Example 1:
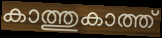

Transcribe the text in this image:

കാത്തുകാത്ത്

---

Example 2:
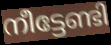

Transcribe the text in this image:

നീട്ടേണ്ടി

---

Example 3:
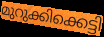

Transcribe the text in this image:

മുറുക്കിക്കെട്ടി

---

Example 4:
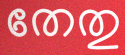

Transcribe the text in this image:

തേതു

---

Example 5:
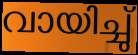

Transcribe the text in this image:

വായിച്ചു്